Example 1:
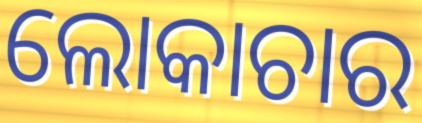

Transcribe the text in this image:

ଲୋକାଚାର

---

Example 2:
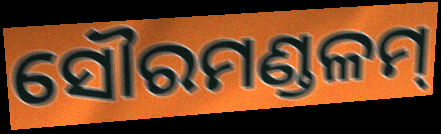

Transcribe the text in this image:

ସୌରମଣ୍ଡଳମ୍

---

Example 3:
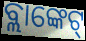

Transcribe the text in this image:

ବ୍ଲାଙ୍କେଟ୍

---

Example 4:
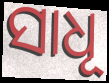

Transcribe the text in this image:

ସାଧୂ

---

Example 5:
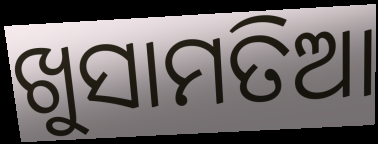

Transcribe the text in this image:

ଖୁସାମତିଆ